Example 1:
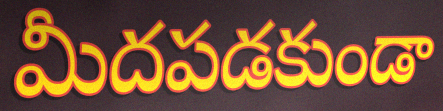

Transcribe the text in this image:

మీదపడకుండా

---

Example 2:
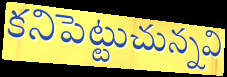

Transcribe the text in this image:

కనిపెట్టుచున్నవి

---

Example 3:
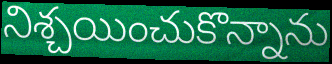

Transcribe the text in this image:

నిశ్చయించుకొన్నాను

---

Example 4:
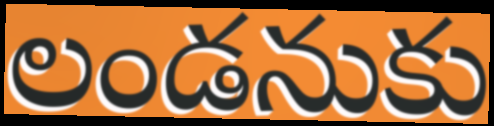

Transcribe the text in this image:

లండనుకు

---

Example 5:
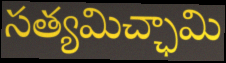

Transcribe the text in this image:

సత్యమిచ్ఛామి